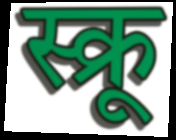
स्क्रू